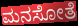
ಮನಸೋತೆ